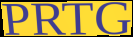
PRTG